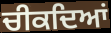
ਚੀਕਦਿਆਂ